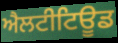
ਐਲਟੀਟਿਊਡ